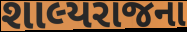
શાલ્યરાજના